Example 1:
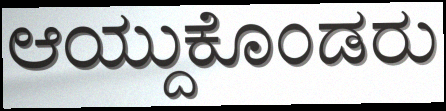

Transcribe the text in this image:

ಆಯ್ದುಕೊಂಡರು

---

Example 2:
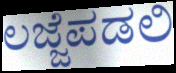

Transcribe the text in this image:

ಲಜ್ಜೆಪಡಲಿ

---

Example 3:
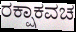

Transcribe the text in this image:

ರಕ್ಷಾಕವಚ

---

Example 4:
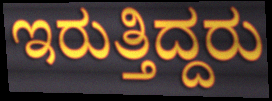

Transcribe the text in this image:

ಇರುತ್ತಿದ್ದರು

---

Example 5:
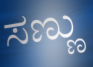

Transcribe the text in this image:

ಸಣ್ಣು